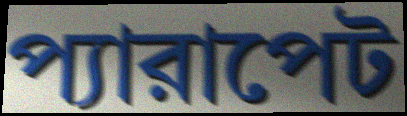
প্যারাপেট